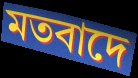
মতবাদে